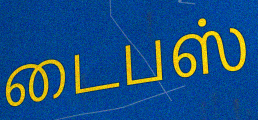
டைபஸ்